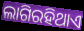
ଲାଗିରହିଥାଏ